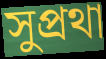
সুপ্রথা